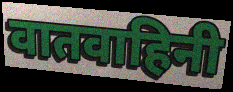
वातवाहिनी